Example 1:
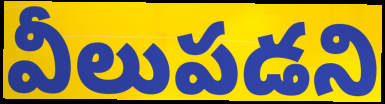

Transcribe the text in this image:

వీలుపడని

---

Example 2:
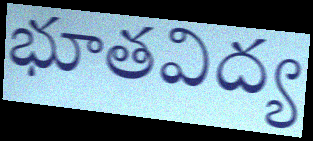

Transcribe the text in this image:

భూతవిద్య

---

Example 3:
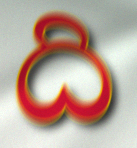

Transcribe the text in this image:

ది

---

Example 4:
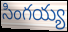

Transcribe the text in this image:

సింగయ్య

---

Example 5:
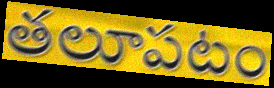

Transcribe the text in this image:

తలూపటం